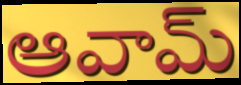
ఆవామ్